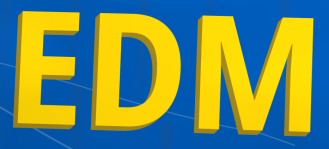
EDM